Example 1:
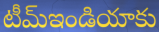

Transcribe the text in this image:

టీమ్ఇండియాకు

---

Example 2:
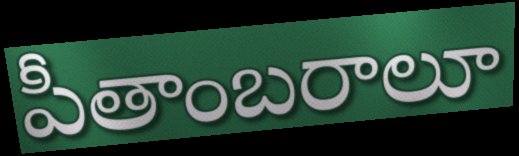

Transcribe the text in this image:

పీతాంబరాలూ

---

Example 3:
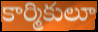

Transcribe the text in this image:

కార్మికులూ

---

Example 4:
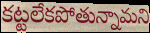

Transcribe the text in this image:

కట్టలేకపోతున్నామని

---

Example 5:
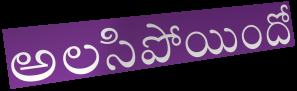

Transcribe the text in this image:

అలసిపోయిందో